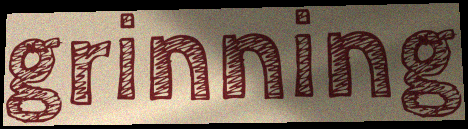
grinning